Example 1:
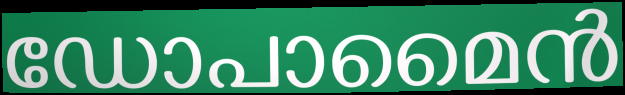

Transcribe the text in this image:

ഡോപാമൈൻ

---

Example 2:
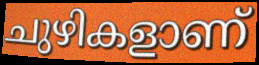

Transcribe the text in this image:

ചുഴികളാണ്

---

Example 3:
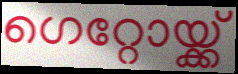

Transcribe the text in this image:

ഗെറ്റോയ്ക്ക്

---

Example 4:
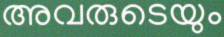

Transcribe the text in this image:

അവരുടെയും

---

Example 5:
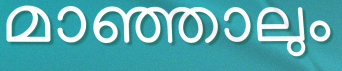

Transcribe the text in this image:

മാഞ്ഞാലും